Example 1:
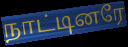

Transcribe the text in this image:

நாட்டினரே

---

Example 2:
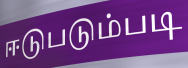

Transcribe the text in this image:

ஈடுபடும்படி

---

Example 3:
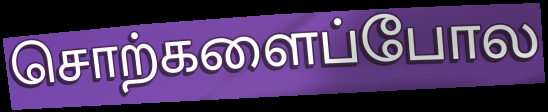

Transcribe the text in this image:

சொற்களைப்போல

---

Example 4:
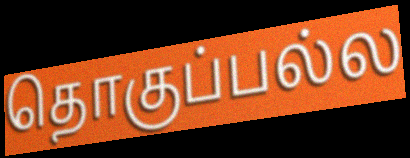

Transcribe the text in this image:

தொகுப்பல்ல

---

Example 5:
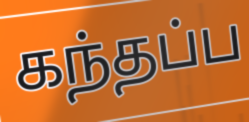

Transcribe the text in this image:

கந்தப்ப